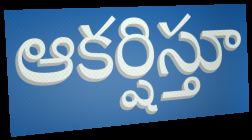
ఆకర్షిస్తూ